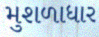
મુશળાધાર